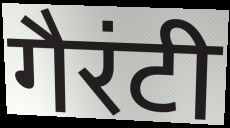
गैरंटी